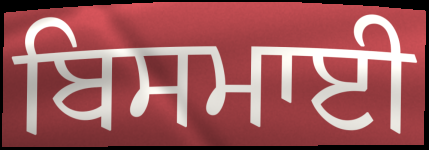
ਬਿਸਮਾਈ